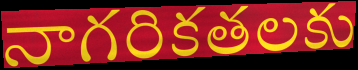
నాగరికతలకు